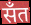
सँत